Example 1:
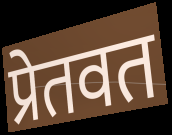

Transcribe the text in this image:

प्रेतवत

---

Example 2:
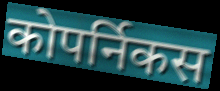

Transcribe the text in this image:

कोपर्निकस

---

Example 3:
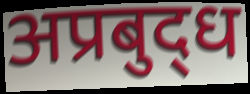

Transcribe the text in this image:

अप्रबुद्ध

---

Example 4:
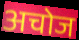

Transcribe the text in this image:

अचोज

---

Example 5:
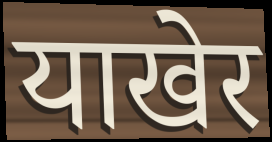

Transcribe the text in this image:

याखेर